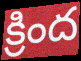
క్రింద